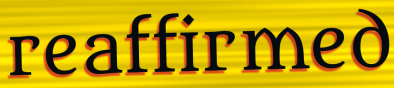
reaffirmed